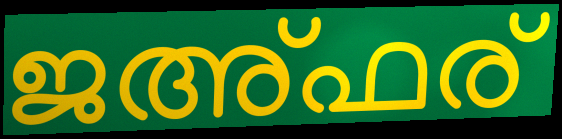
ജഅ്ഫര്